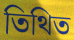
তিথিত